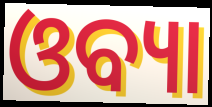
ଓବ୍ୟା